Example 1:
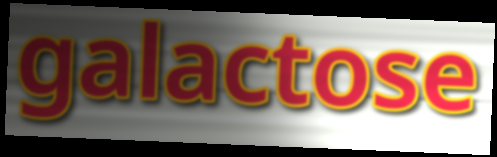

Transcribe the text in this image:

galactose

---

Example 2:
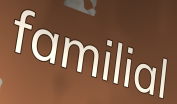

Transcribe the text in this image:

familial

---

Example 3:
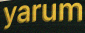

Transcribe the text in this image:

yarum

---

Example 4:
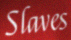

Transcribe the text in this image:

Slaves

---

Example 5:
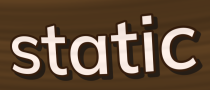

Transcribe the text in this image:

static